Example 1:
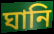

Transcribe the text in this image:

ঘানি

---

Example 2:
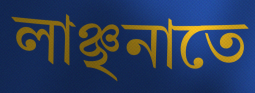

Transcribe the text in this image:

লাঞ্ছনাতে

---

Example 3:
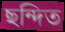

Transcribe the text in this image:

ছন্দিত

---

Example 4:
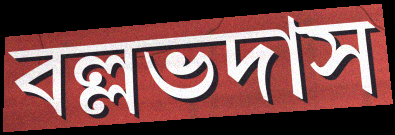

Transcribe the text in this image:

বল্লভদাস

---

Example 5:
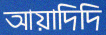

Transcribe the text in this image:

আয়াদিদি